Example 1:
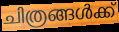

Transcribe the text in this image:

ചിത്രങ്ങൾക്ക്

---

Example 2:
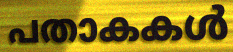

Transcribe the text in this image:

പതാകകൾ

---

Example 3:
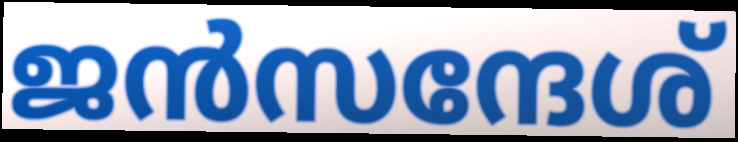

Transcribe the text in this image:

ജൻസന്ദേശ്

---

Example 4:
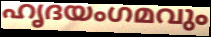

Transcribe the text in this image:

ഹൃദയംഗമവും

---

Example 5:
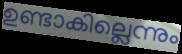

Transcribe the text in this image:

ഉണ്ടാകില്ലെന്നും